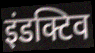
इंडक्टिव